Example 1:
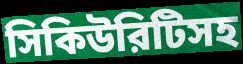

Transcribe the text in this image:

সিকিউরিটিসহ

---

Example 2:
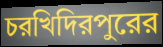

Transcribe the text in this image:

চরখিদিরপুরের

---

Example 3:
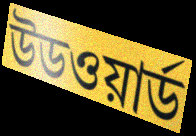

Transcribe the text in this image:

উডওয়ার্ড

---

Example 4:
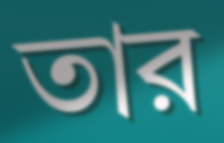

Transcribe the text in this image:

তার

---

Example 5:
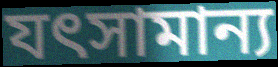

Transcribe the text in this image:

যৎসামান্য